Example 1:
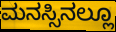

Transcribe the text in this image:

ಮನಸ್ಸಿನಲ್ಲೂ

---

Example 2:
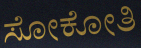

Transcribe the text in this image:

ಸೋಕೋತಿ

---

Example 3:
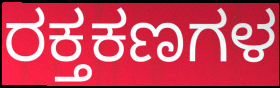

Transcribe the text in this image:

ರಕ್ತಕಣಗಳ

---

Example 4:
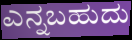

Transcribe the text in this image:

ಎನ್ನಬಹುದು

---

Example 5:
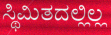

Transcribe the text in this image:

ಸ್ಥಿಮಿತದಲ್ಲಿಲ್ಲ